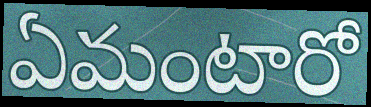
ఏమంటారో